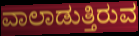
ವಾಲಾಡುತ್ತಿರುವ